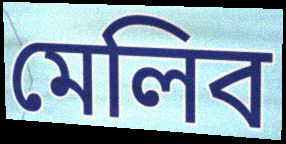
মেলিব